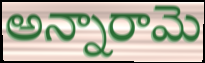
అన్నారామె